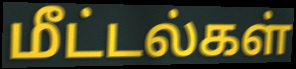
மீட்டல்கள்